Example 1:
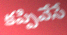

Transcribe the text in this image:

కప్పివేసే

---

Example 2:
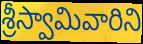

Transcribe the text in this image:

శ్రీస్వామివారిని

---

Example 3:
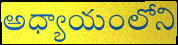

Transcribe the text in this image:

అధ్యాయంలోని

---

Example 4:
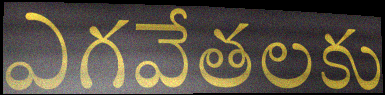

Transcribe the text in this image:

ఎగవేతలకు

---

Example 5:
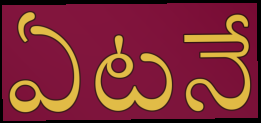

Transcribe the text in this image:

ఏటనే